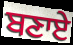
ਬਣਾਏ